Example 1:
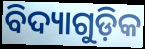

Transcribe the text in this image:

ବିଦ୍ୟାଗୁଡ଼ିକ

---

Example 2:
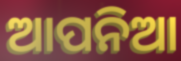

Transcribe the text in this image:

ଆପନିଆ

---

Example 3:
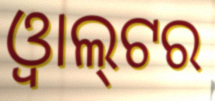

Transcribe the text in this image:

ଓ୍ୱାଲ୍‍ଟର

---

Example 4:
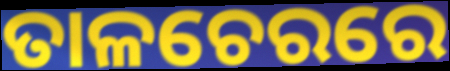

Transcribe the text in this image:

ତାଳଚେରରେ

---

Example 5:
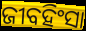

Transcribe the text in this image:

ଜୀବହିଂସା